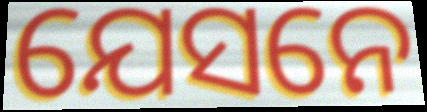
ଯେସନେ